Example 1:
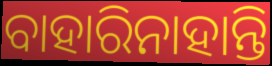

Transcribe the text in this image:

ବାହାରିନାହାନ୍ତି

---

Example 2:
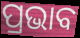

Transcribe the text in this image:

ପ୍ରଭାବ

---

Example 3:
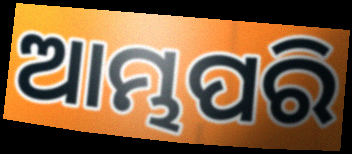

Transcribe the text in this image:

ଆମ୍ଭପରି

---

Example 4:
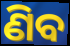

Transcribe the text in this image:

ଣିବ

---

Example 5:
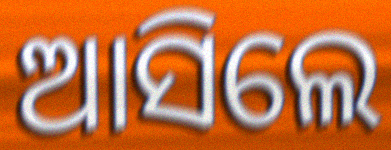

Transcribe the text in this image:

ଆସିଲେ